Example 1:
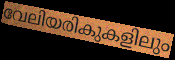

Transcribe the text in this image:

വേലിയരികുകളിലും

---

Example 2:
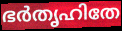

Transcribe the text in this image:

ഭർതൃഹിതേ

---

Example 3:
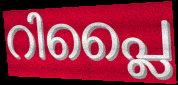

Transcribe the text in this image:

റിപ്ലൈ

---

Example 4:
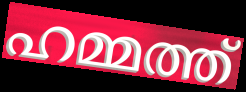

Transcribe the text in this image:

ഹമ്മത്ത്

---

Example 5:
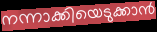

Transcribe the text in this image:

നന്നാക്കിയെടുക്കാൻ